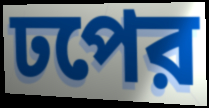
ঢপের